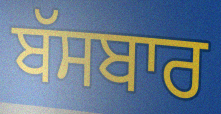
ਬੱਸਬਾਰ